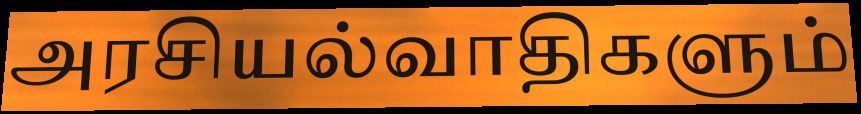
அரசியல்வாதிகளும்